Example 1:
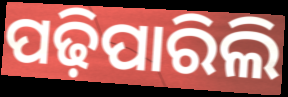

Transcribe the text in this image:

ପଢ଼ିପାରିଲି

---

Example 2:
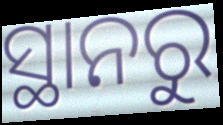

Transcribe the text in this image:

ସ୍ଥାନରୁ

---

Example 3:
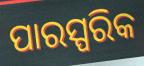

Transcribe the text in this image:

ପାରସ୍ପରିକ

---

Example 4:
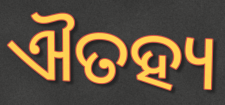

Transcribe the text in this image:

ଐତହ୍ୟ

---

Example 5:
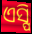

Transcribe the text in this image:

ଏସ୍ପି